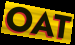
OAT